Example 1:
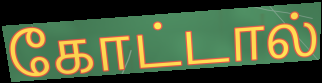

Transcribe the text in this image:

கோட்டால்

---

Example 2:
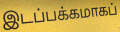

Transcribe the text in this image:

இடப்பக்கமாகப்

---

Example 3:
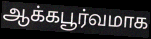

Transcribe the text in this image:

ஆக்கபூர்வமாக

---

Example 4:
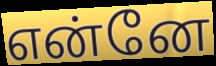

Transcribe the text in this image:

என்னே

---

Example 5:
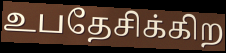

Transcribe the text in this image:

உபதேசிக்கிற